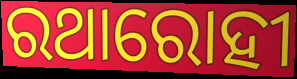
ରଥାରୋହୀ